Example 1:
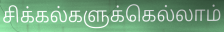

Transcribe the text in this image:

சிக்கல்களுக்கெல்லாம்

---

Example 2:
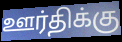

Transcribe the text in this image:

ஊர்திக்கு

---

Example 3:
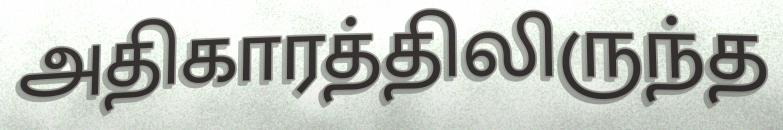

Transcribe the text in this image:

அதிகாரத்திலிருந்த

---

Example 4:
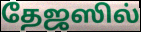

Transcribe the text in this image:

தேஜஸில்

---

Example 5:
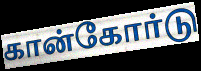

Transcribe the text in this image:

கான்கோர்டு